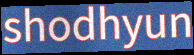
shodhyun